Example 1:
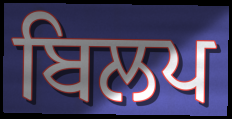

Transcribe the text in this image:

ਬਿਲਪ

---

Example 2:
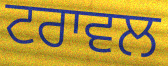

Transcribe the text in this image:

ਟਰਾਵਲ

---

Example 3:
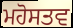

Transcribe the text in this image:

ਮਹੋਸਤਵ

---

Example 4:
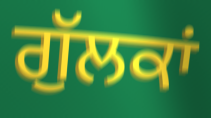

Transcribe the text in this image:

ਗੁੱਲਕਾਂ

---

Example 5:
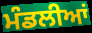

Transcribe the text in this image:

ਮੰਡਲੀਆਂ